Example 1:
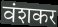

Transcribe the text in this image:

वंशकर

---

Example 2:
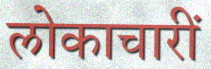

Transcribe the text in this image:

लोकाचारीं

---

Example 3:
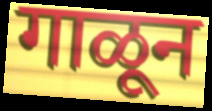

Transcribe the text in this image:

गाळून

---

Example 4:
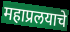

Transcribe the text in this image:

महाप्रलयाचे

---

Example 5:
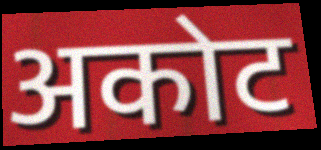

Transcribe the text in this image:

अकोट